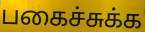
பகைச்சுக்க